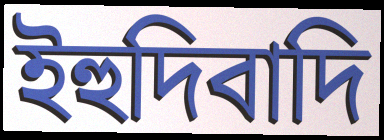
ইহুদিবাদি